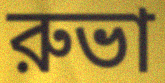
রুভা